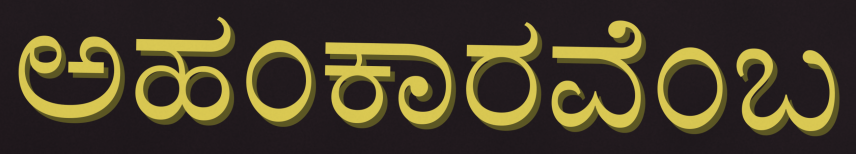
ಅಹಂಕಾರವೆಂಬ